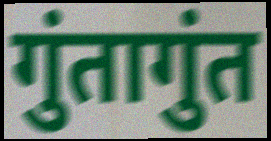
गुंतागुंत